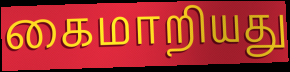
கைமாறியது